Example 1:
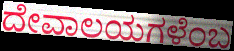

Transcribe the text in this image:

ದೇವಾಲಯಗಳೆಂಬ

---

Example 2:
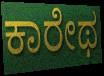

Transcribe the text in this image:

ಕಾರೇಥ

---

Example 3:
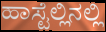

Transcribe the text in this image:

ಹಾಸ್ಟೆಲ್ಲಿನಲ್ಲಿ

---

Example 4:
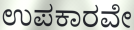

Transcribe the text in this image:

ಉಪಕಾರವೇ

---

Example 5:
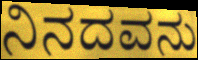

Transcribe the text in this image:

ನಿನದವನು